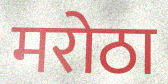
मरोठा